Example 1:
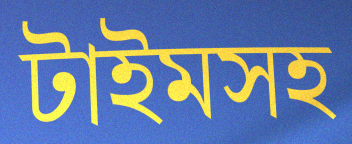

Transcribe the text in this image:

টাইমসহ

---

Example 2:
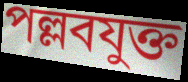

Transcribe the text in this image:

পল্লবযুক্ত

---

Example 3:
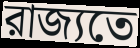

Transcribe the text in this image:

রাজ্যতে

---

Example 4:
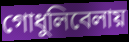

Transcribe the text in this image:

গোধুলিবেলায়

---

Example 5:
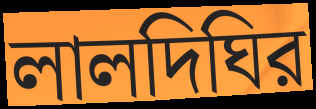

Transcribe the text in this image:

লালদিঘির